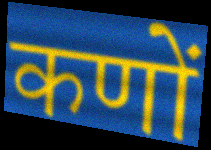
कणों